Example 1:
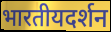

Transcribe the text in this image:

भारतीयदर्शन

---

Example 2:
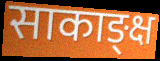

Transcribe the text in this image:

साकाङ्क्ष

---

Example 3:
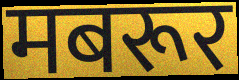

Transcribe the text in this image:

मबरूर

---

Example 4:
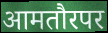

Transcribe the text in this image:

आमतौरपर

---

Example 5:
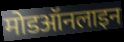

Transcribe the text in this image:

मोडऑनलाइन